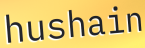
hushain